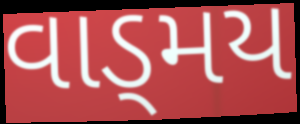
વાડ્મય